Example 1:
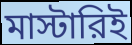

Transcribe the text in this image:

মাস্টারিই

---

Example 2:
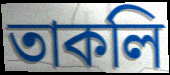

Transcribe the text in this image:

তাকলি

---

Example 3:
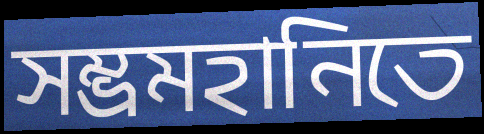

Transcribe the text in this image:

সম্ভ্রমহানিতে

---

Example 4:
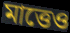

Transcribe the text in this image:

মাত্তেও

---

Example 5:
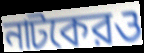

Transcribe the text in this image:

নাটকেরও